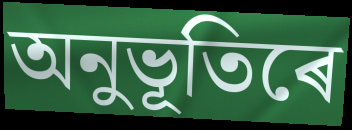
অনুভূতিৰে